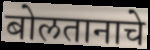
बोलतानाचे